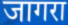
जागरा